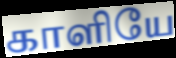
காளியே